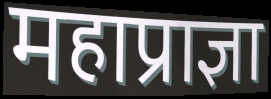
महाप्राज्ञा